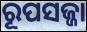
ରୂପସଜ୍ଜା